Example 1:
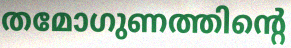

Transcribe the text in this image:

തമോഗുണത്തിന്റെ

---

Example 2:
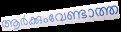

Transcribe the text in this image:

ആർക്കുംവേണ്ടാത്ത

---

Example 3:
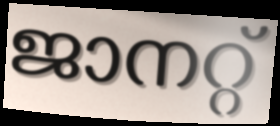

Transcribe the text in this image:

ജാനറ്റ്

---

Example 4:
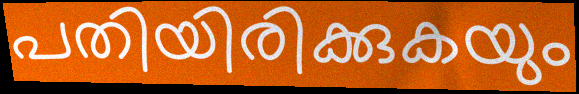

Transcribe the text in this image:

പതിയിരിക്കുകയും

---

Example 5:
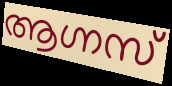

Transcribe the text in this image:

ആഗ്നസ്